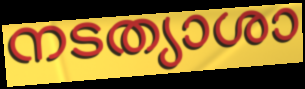
നടത്യാശാ